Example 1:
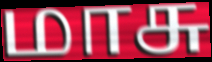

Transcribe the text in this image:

மாசு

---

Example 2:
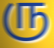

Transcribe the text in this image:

ரு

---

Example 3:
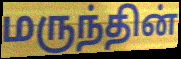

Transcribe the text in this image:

மருந்தின்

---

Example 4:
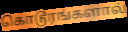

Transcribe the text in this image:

கொடூரங்களால்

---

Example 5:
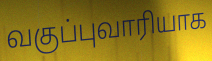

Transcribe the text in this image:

வகுப்புவாரியாக